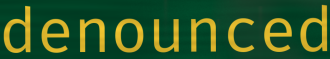
denounced